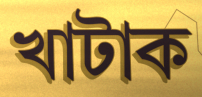
খাটাক